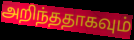
அறிந்ததாகவும்